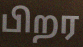
பிறர